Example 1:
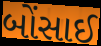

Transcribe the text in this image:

બોંસાઈ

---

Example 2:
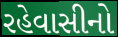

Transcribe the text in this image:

રહેવાસીનો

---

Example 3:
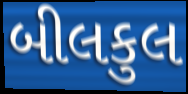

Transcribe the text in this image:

બીલકુલ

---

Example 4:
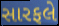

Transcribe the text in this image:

સારફલે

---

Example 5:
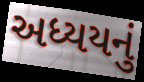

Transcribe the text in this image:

અધ્યયનું